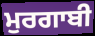
ਮੁਰਗਾਬੀ